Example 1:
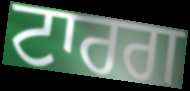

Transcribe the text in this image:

ਟਾਰਗ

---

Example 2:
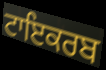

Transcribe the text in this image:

ਟਾਇਕਰਬ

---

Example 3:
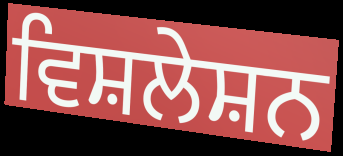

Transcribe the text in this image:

ਵਿਸ਼ਲੇਸ਼ਨ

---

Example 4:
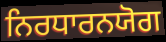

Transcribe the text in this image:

ਨਿਰਧਾਰਨਯੋਗ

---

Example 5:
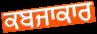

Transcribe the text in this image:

ਕਬਜਾਕਾਰ